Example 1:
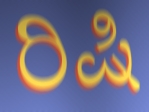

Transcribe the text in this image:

ರಿಷಿ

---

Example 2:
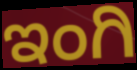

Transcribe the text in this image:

ಇಂಗಿ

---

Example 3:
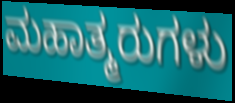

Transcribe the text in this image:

ಮಹಾತ್ಮರುಗಳು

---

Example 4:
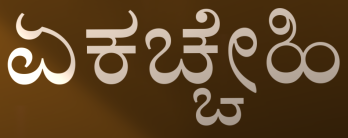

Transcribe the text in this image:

ಏಕಚ್ಚೇಹಿ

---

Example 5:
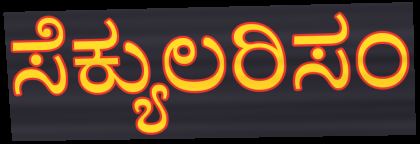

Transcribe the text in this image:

ಸೆಕ್ಯುಲರಿಸಂ